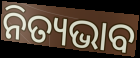
ନିତ୍ୟଭାବ